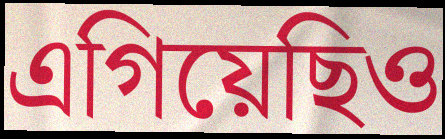
এগিয়েছিও